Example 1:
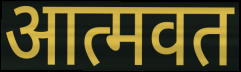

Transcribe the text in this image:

आत्मवत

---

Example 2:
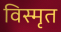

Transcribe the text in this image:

विस्मृत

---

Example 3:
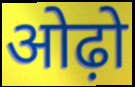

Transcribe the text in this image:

ओढ़ो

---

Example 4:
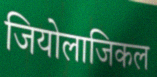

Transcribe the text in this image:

जियोलाजिकल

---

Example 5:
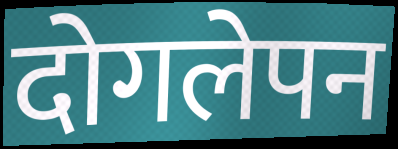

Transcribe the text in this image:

दोगलेपन